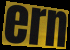
ern